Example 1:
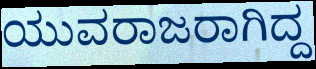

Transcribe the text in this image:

ಯುವರಾಜರಾಗಿದ್ದ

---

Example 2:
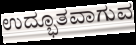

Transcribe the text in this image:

ಉದ್ಭೂತವಾಗುವ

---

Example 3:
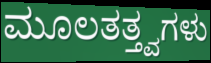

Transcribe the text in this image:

ಮೂಲತತ್ತ್ವಗಳು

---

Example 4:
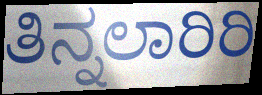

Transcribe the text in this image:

ತಿನ್ನಲಾರಿರಿ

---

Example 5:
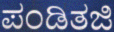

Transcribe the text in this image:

ಪಂಡಿತಜಿ